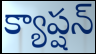
క్యాప్షన్